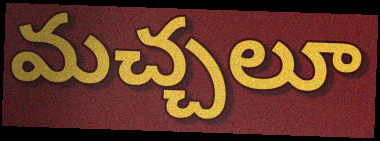
మచ్చలూ